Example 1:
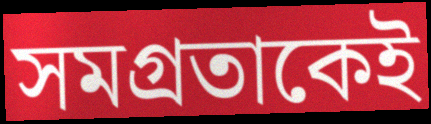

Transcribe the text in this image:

সমগ্রতাকেই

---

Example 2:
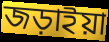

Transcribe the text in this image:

জড়াইয়া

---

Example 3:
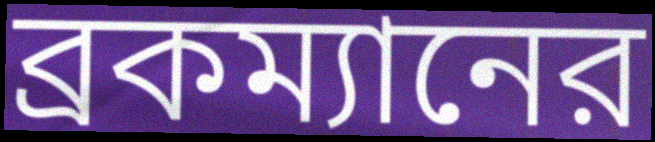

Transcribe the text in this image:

ব্রকম্যানের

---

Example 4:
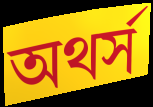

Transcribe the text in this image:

অথর্স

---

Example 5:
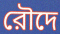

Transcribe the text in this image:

রৌদে